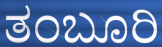
ತಂಬೂರಿ